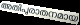
അതിപുരാതനമായ